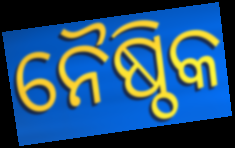
ନୈଷ୍ଠିକ